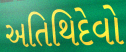
અતિથિદેવો